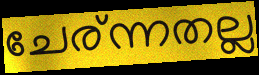
ചേര്ന്നതല്ല